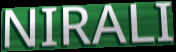
NIRALI